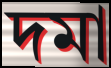
দমা